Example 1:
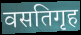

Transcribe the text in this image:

वसतिगृह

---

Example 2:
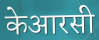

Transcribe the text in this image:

केआरसी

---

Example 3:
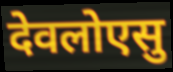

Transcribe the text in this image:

देवलोएसु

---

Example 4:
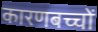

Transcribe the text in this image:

कारणबच्चों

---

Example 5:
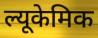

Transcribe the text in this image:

ल्यूकेमिक